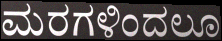
ಮರಗಳಿಂದಲೂ